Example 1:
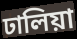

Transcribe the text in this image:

ঢালিয়া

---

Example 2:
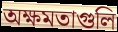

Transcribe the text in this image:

অক্ষমতাগুলি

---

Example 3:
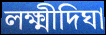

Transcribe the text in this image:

লক্ষ্মীদিঘা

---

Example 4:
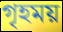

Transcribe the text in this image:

গৃহময়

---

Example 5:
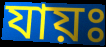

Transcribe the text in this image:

যায়ঃ